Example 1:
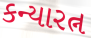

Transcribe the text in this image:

કન્યારત્ન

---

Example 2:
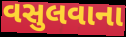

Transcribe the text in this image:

વસુલવાના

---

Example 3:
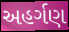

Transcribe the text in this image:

અહર્ગણ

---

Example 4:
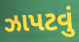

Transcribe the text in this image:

ઝાપટવું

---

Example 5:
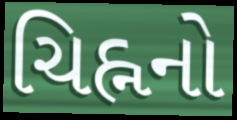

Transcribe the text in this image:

ચિહ્નનો